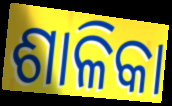
ଶାଳିକା